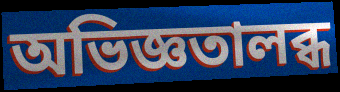
অভিজ্ঞতালব্ধ